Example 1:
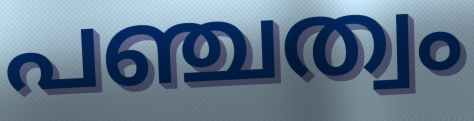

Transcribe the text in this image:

പഞ്ചത്വം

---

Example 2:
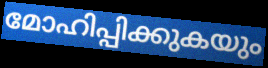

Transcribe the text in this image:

മോഹിപ്പിക്കുകയും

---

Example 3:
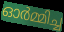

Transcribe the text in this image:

ഓർമ്മിച്ച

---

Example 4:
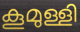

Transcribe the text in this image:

കൂമുള്ളി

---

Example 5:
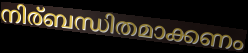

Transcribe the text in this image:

നിര്ബന്ധിതമാക്കണം